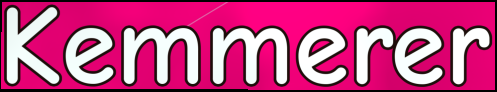
Kemmerer